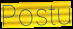
Postu